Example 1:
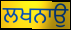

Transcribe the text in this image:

ਲਖਨਾਉ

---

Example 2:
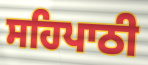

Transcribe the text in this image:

ਸਹਿਪਾਠੀ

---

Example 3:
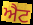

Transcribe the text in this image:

ਐਟ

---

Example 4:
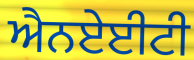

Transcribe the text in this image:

ਐਨਏਈਟੀ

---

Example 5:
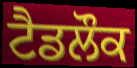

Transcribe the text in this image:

ਟੈਡਲੌਕ